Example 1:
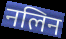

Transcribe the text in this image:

नलिन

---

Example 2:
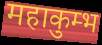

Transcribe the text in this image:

महाकुम्भ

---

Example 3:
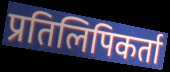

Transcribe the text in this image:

प्रतिलिपिकर्ता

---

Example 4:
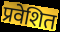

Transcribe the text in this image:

प्रवेशित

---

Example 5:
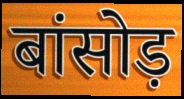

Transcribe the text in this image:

बांसोड़